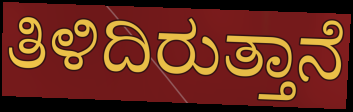
ತಿಳಿದಿರುತ್ತಾನೆ